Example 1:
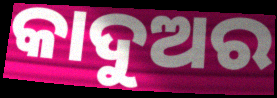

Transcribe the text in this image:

କାଦୁଅର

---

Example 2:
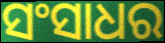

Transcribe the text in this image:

ସଂସାଧର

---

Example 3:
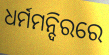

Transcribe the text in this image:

ଧର୍ମମନ୍ଦିରରେ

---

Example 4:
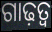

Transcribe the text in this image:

ଗାଢ଼ତ୍ବ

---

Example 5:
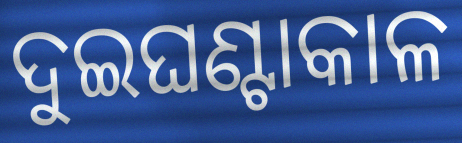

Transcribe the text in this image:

ଦୁଇଘଣ୍ଟାକାଳ